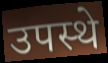
उपस्थे